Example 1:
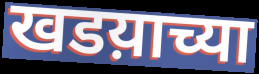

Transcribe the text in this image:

खडय़ाच्या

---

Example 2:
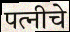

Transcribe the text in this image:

पत्‍नीचे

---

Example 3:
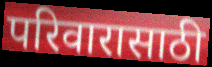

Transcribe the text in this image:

परिवारासाठी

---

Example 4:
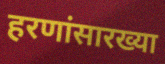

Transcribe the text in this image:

हरणांसारख्या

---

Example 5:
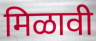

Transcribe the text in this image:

मिळावी